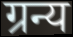
ग्रन्य